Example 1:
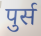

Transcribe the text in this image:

पुर्स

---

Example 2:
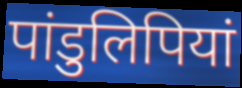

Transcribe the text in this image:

पांडुलिपियां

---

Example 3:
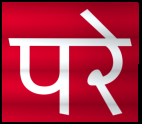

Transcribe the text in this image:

परे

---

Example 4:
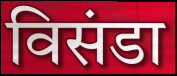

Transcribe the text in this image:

विसंडा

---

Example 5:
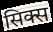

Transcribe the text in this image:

सिक्स